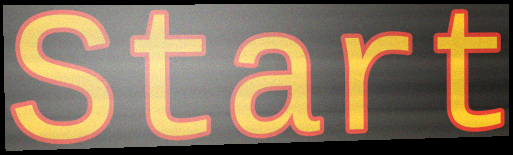
Start